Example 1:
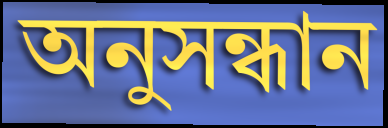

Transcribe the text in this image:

অনুসন্ধান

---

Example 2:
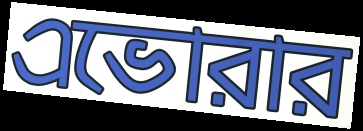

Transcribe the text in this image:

এভোরার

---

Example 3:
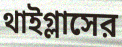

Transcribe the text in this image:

থাইগ্লাসের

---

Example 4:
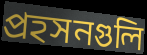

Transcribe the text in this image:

প্রহসনগুলি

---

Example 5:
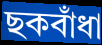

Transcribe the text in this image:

ছকবাঁধা